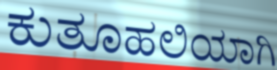
ಕುತೂಹಲಿಯಾಗಿ